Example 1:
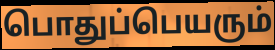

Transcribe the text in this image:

பொதுப்பெயரும்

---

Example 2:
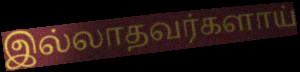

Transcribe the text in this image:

இல்லாதவர்களாய்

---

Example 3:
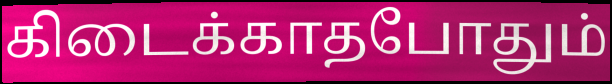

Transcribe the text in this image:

கிடைக்காதபோதும்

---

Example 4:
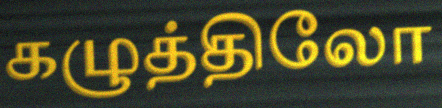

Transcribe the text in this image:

கழுத்திலோ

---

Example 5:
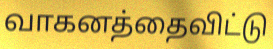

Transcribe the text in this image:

வாகனத்தைவிட்டு